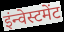
इंन्वेस्टमेंट